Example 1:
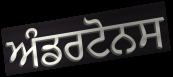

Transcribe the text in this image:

ਅੰਡਰਟੋਨਸ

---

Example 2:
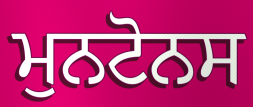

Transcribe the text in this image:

ਮੁਨਟੋਨਸ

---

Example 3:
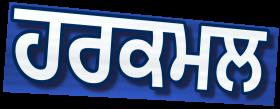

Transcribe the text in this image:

ਹਰਕਮਲ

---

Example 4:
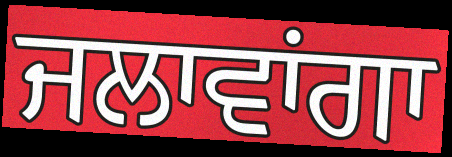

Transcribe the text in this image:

ਜਲਾਵਾਂਗਾ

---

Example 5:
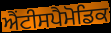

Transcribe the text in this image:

ਐਂਟੀਸਪੈਮੋਡਿਕ